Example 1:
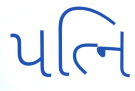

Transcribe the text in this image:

પત્નિ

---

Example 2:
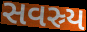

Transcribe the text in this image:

સવસ્ર્ય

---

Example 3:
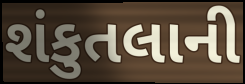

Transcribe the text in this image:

શંકુતલાની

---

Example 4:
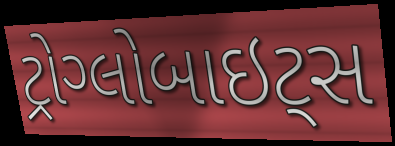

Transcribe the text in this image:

ટ્રોગ્લોબાઇટ્સ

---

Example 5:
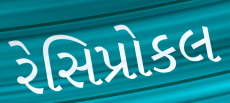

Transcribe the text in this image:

રેસિપ્રોકલ